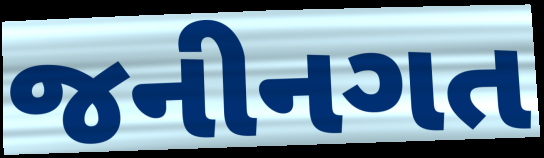
જનીનગત